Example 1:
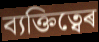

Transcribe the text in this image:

ব্যক্তিত্বেৰ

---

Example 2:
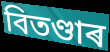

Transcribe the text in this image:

বিতণ্ডাৰ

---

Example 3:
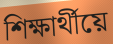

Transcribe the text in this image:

শিক্ষাৰ্থীয়ে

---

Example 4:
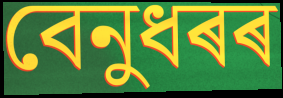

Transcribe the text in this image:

বেনুধৰৰ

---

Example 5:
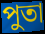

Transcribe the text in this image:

পুতা